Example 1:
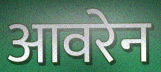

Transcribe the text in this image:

आवरेन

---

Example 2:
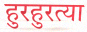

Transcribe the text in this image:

हुरहुरत्या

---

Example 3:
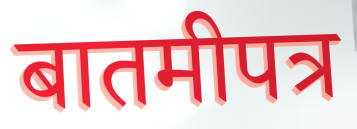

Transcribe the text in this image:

बातमीपत्र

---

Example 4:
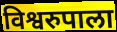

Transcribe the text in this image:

विश्वरुपाला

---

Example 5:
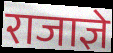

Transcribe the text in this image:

राजाज्ञे